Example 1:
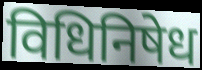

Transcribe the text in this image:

विधिनिषेध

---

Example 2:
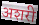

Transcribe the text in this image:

अशरी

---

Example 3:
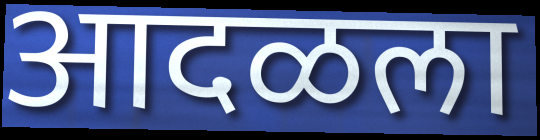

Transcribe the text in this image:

आदळला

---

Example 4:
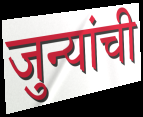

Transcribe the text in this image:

जुन्यांची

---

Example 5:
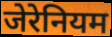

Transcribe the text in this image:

जेरेनियम